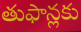
తుఫాన్లకు